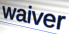
waiver